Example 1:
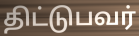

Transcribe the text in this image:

திட்டுபவர்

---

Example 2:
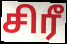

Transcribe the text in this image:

சிரீ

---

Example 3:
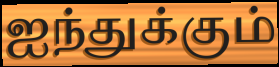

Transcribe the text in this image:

ஐந்துக்கும்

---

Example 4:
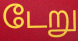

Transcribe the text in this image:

டேறு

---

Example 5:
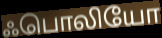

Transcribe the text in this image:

ஃபொலியோ